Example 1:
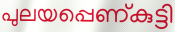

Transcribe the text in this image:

പുലയപ്പെണ്കുട്ടി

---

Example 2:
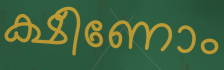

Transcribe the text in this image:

ക്ഷീണോം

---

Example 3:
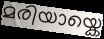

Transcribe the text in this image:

മരിയായ്കെ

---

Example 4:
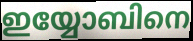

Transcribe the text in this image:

ഇയ്യോബിനെ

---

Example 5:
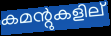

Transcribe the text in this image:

കമന്റുകളില്